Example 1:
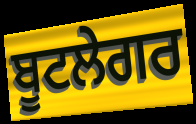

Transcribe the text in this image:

ਬੂਟਲੇਗਰ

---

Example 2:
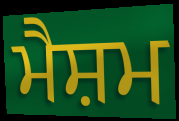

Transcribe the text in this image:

ਮੈਸ਼ਮ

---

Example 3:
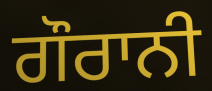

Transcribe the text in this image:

ਗੌਰਾਨੀ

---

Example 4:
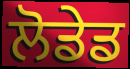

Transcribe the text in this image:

ਲੋਡੇਡ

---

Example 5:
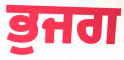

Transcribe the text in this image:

ਭੁਜਗ